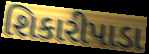
શિકારીપાડા